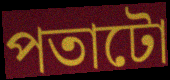
পতাটো